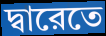
দ্বারেতে